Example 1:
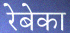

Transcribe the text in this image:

रेबेका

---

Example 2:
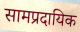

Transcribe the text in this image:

सामप्रदायिक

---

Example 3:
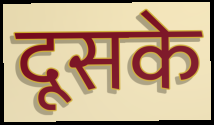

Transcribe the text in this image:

दूसके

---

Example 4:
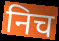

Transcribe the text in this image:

निच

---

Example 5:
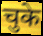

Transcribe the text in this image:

चुके